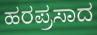
ಹರಪ್ರಸಾದ